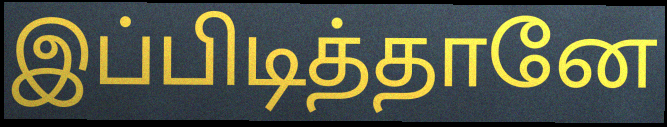
இப்பிடித்தானே